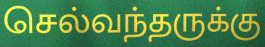
செல்வந்தருக்கு